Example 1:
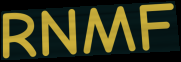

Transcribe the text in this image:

RNMF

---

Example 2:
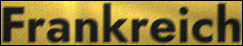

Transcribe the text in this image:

Frankreich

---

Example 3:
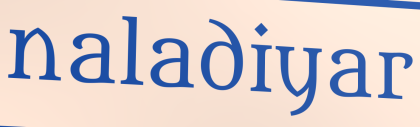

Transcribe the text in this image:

naladiyar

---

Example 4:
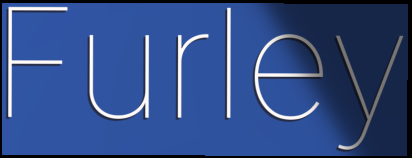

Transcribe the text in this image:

Furley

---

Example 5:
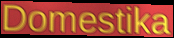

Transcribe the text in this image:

Domestika